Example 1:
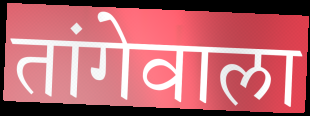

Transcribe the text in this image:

तांगेवाला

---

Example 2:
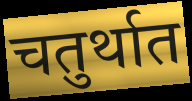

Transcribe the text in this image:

चतुर्थात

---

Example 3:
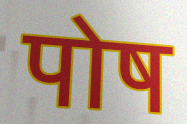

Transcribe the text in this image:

पोष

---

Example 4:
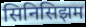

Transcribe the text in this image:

सिनिसिझम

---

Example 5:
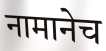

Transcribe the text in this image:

नामानेच